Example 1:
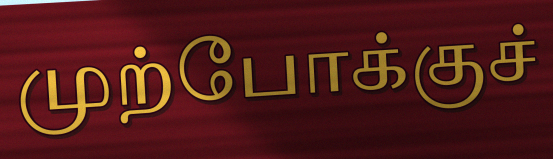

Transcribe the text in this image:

முற்போக்குச்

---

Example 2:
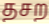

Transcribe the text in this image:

தசற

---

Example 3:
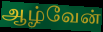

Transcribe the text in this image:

ஆழ்வேன்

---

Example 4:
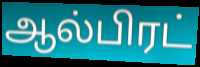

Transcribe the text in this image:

ஆல்பிரட்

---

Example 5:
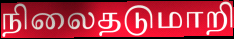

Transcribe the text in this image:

நிலைதடுமாறி